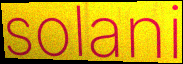
solani